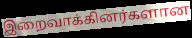
இறைவாக்கினர்களான